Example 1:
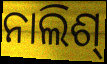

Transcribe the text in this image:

ନାଲିଶ୍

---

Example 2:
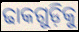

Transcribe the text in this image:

ଢାକଗୁଡ଼ିକୁ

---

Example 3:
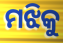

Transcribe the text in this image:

ମଝିକୁ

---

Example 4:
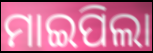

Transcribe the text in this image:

ମାଇପିଲା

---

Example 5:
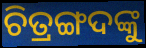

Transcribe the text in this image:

ଚିତ୍ରଙ୍ଗଦଙ୍କୁ